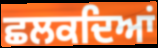
ਛਲਕਦਿਆਂ